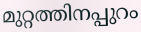
മുറ്റത്തിനപ്പുറം